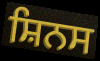
ਸ਼ਿਨਸ